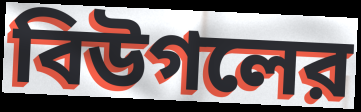
বিউগলের